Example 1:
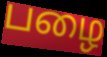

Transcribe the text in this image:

பழை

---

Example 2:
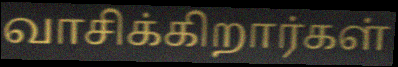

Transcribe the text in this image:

வாசிக்கிறார்கள்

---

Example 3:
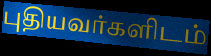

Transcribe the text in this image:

புதியவர்களிடம்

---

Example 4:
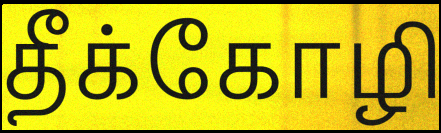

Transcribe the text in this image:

தீக்கோழி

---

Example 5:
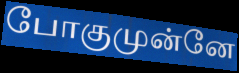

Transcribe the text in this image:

போகுமுன்னே